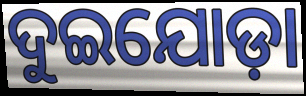
ଦୁଇଯୋଡ଼ା